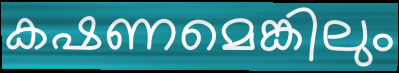
കഷണമെങ്കിലും